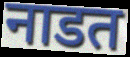
नाडत